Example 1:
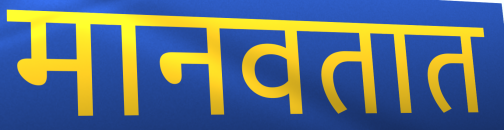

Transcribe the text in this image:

मानवतात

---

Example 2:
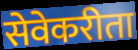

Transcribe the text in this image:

सेवेकरीता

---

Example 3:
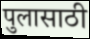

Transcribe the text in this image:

पुलासाठी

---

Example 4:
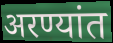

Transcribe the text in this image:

अरण्यांत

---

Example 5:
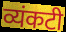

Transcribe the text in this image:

व्यंकटी